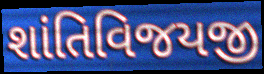
શાંતિવિજયજી